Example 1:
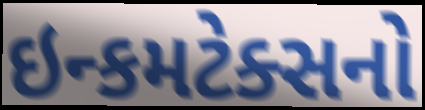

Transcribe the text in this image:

ઇન્કમટેક્સનો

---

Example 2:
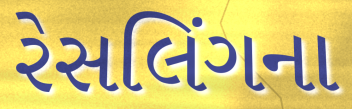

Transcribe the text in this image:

રેસલિંગના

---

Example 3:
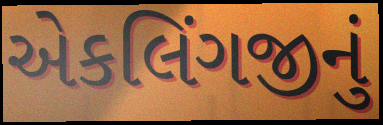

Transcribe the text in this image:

એકલિંગજીનું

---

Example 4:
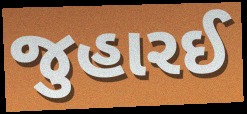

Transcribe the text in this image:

જુહારઈ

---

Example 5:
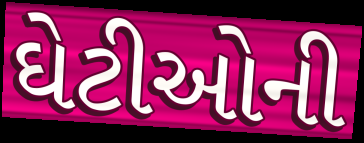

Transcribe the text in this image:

ઘેટીઓની